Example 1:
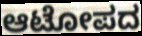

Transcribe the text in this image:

ಆಟೋಪದ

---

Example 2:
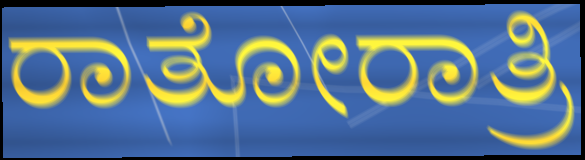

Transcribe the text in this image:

ರಾತೋರಾತ್ರಿ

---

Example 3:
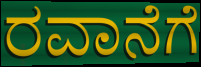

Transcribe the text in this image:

ರವಾನೆಗೆ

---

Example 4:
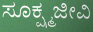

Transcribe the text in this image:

ಸೂಕ್ಷ್ಮಜೀವಿ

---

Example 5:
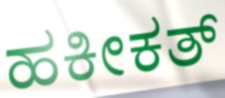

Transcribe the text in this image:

ಹಕೀಕತ್